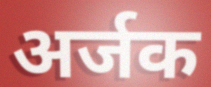
अर्जक